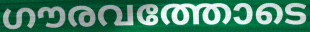
ഗൗരവത്തോടെ